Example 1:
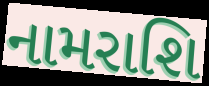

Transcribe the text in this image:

નામરાશિ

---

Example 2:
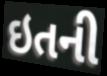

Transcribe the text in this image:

ઇતની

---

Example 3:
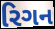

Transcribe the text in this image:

રિગન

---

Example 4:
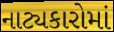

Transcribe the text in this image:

નાટ્યકારોમાં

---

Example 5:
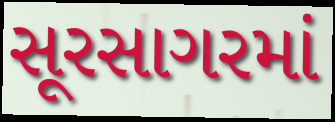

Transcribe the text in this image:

સૂરસાગરમાં